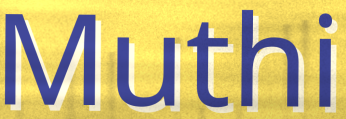
Muthi